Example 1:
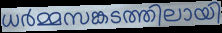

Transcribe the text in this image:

ധർമ്മസങ്കടത്തിലായി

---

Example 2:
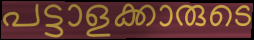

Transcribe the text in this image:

പട്ടാളക്കാരുടെ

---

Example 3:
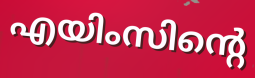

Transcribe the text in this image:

എയിംസിന്റെ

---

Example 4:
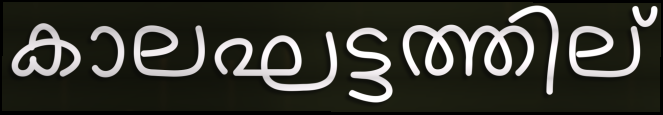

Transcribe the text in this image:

കാലഘട്ടത്തില്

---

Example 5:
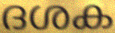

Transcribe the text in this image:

ദശക